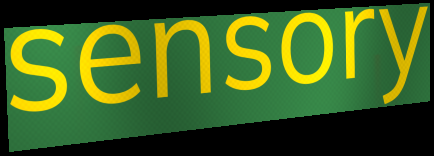
sensory